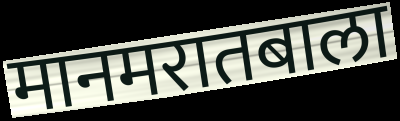
मानमरातबाला